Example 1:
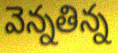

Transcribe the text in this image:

వెన్నతిన్న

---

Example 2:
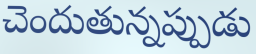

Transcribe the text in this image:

చెందుతున్నప్పుడు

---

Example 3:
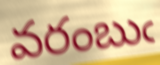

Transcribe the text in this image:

వరంబుఁ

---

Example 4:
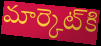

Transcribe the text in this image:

మార్కెట్‌కి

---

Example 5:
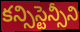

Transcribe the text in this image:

కన్సిస్టెన్సీని